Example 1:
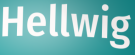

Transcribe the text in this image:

Hellwig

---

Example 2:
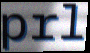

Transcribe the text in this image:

prl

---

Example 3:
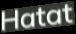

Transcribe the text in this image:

Hatat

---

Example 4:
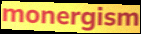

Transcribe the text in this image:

monergism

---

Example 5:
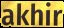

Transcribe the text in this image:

akhir